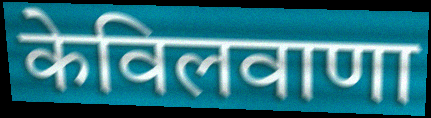
केविलवाणा